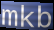
mkb